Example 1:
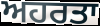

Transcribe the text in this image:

ਅਹਰਤਾ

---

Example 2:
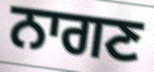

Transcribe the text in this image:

ਨਾਗਣ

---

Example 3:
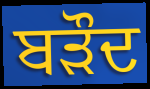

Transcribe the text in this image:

ਬੜੌਦ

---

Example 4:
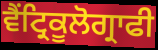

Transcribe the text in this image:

ਵੈਂਟ੍ਰਿਕੂਲੋਗ੍ਰਾਫੀ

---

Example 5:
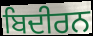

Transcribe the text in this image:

ਬਿਦੀਰਨ